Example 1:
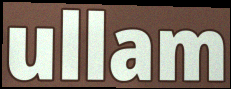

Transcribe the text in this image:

ullam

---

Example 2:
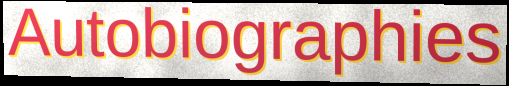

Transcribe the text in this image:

Autobiographies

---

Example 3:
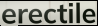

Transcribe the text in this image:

erectile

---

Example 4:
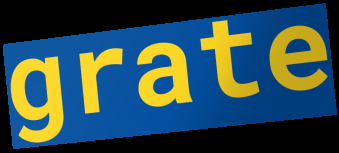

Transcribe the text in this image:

grate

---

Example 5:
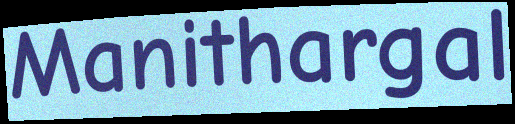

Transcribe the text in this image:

Manithargal